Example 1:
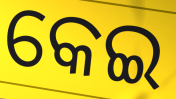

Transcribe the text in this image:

କେଇ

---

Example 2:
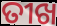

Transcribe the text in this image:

ତୀଖ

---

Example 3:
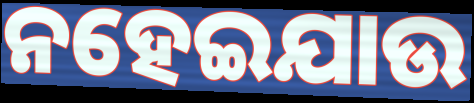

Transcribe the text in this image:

ନହେଇଯାଉ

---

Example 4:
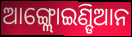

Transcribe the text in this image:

ଆଙ୍ଗ୍ଲୋଇଣ୍ଡିଆନ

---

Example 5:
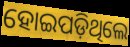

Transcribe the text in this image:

ହୋଇପଡ଼ିଥିଲେ